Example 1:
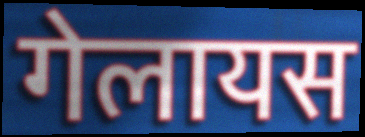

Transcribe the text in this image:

गेलायस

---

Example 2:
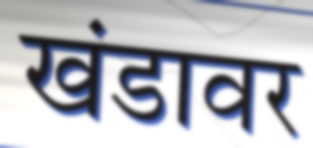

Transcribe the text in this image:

खंडावर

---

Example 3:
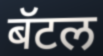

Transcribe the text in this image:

बॅटल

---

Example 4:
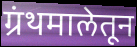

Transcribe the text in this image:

ग्रंथमालेतून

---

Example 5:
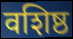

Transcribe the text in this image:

वशिष्ठ